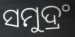
ସମୁଦ୍ରଂ